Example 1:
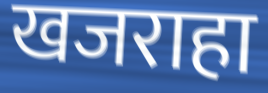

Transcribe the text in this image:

खजराहा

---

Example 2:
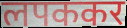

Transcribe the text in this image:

लपककर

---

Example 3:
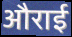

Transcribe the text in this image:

औराई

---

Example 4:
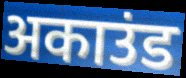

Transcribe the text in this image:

अकाउंड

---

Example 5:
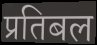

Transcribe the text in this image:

प्रतिबल